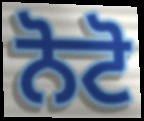
ਨੋਟੋ